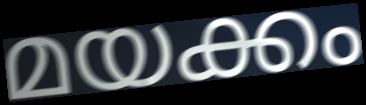
മയക്കം